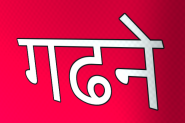
गढने